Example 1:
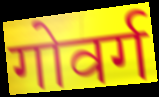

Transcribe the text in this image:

गोवर्ग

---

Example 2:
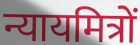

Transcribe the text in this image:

न्यायमित्रों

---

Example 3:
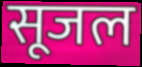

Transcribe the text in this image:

सूजल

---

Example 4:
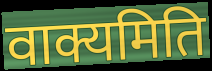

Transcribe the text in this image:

वाक्यमिति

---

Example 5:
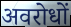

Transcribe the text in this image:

अवरोधों